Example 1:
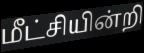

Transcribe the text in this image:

மீட்சியின்றி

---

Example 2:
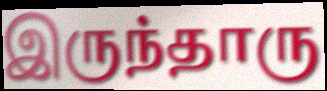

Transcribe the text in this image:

இருந்தாரு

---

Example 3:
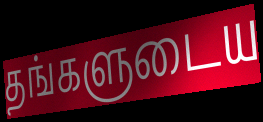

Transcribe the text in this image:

தங்களுடைய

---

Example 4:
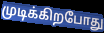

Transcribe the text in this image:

முடிக்கிறபோது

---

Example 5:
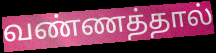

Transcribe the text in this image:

வண்ணத்தால்